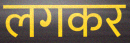
लगकर